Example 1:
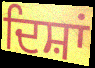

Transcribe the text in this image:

ਦਿਸ਼ਾਂ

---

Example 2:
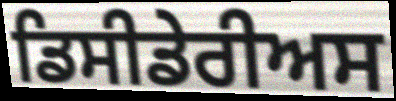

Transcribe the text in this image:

ਡਿਸੀਡੇਰੀਅਸ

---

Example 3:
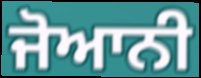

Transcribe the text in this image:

ਜੋਆਨੀ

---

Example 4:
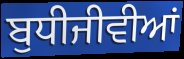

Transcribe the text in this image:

ਬੁਧੀਜੀਵੀਆਂ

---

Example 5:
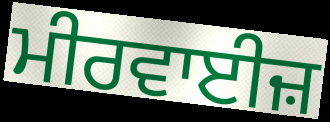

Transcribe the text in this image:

ਮੀਰਵਾਈਜ਼